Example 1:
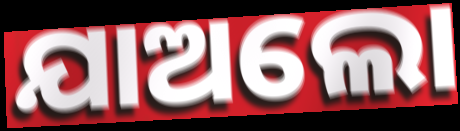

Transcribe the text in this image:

ଯାଅଲୋ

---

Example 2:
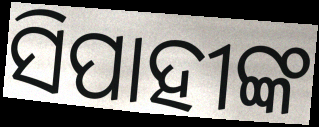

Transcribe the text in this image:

ସିପାହୀଙ୍କ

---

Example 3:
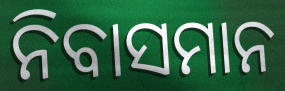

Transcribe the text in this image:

ନିବାସମାନ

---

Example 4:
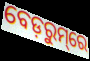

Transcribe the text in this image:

ବେଡ଼ରୁମ୍‌ରେ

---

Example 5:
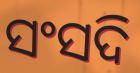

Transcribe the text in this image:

ସଂସଦି